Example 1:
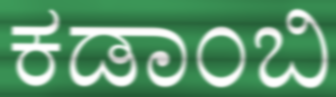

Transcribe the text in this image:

ಕಡಾಂಬಿ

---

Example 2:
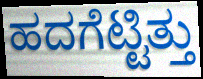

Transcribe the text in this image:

ಹದಗೆಟ್ಟಿತ್ತು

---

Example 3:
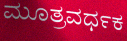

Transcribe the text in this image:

ಮೂತ್ರವರ್ಧಕ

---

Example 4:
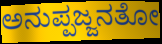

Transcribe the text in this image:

ಅನುಪ್ಪಜ್ಜನತೋ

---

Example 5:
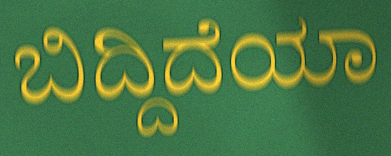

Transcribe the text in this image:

ಬಿದ್ದಿದೆಯಾ